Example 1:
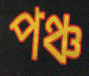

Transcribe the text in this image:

পঞ্চ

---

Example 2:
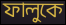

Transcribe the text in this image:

ফালুকে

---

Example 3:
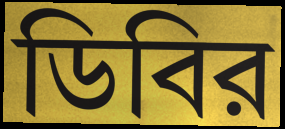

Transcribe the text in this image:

ডিবির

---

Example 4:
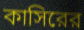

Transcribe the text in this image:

কাসিরের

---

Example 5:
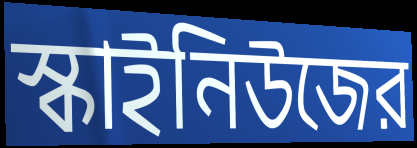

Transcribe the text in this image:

স্কাইনিউজের